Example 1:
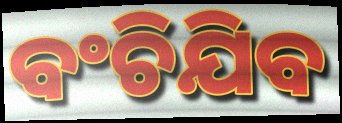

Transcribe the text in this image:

ବଂଚିଯିବ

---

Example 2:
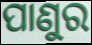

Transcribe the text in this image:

ପାଣୁର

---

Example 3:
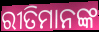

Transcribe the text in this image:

ରୀତିମାନଙ୍କ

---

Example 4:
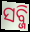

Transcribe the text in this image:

ସବ୍ଜି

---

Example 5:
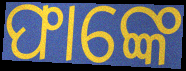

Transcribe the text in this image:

ଫାଙ୍କେ